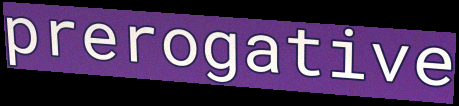
prerogative